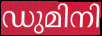
ഡുമിനി